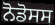
ਨੋਡੋਸਸ